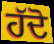
ਹੱਦੋ